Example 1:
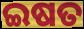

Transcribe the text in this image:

ଇଷତ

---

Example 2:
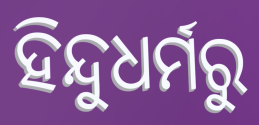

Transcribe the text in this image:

ହିନ୍ଦୁଧର୍ମରୁ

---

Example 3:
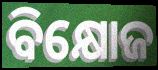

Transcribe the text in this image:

ବିକ୍ଷୋଜ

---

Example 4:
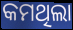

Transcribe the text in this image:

କମଥିଲା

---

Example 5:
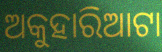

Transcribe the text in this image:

ଅକୁହାରିଆଟା